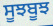
ਸੂਝਬੂਝ